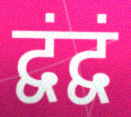
द्वंद्वं